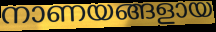
നാണയങ്ങളായ